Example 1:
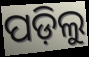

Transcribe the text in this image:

ପଡ଼ିଲୁ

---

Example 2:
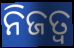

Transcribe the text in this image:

ନିଜତ୍ବ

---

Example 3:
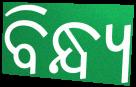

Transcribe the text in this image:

ବିନ୍ଧ୍ୟ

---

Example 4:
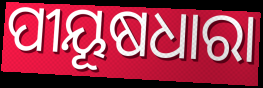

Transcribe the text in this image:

ପୀୟୂଷଧାରା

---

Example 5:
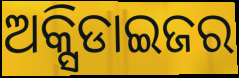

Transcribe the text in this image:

ଅକ୍ସିଡାଇଜର